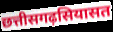
छत्तीसगढ़सियासत